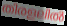
തിരളലിൽ